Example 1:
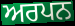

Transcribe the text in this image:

ਅਰਪਨ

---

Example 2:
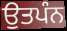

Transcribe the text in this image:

ਉਤਪੰਨ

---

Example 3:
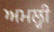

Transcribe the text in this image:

ਅਮਲ੍ਹੀ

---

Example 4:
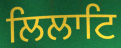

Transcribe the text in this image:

ਲਿਲਾਟਿ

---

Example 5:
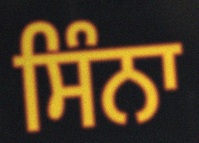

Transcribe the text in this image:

ਸਿੰਨਾ